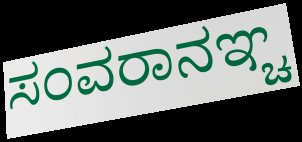
ಸಂವರಾನಞ್ಚ